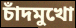
চাঁদমুখো